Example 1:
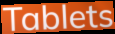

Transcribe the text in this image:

Tablets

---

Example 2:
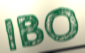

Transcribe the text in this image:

IBO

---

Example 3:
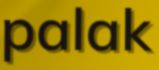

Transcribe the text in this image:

palak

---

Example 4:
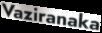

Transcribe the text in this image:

Vaziranaka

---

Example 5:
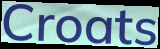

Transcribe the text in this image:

Croats